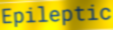
Epileptic